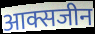
आक्सजीन